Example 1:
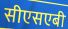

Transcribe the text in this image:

सीएसएबी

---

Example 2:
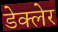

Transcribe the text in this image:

डेक्लेर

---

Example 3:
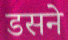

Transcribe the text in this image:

डसने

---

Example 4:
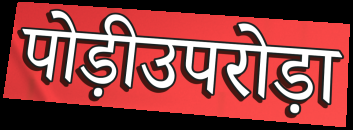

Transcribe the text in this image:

पोड़ीउपरोड़ा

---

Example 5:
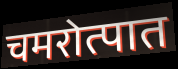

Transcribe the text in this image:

चमरोत्पात